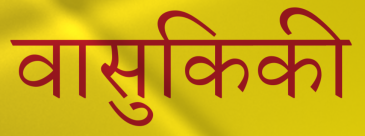
वासुकिकी